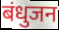
बंधुजन